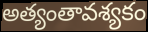
అత్యంతావశ్యకం